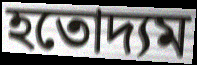
হতোদ্যম